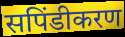
सपिंडीकरण